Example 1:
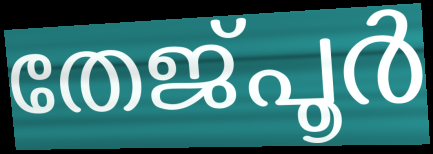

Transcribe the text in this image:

തേജ്പൂർ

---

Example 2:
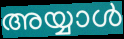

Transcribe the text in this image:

അയ്യാൾ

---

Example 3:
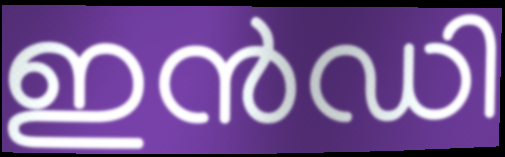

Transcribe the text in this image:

ഇൻഡി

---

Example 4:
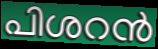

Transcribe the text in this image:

പിശറൻ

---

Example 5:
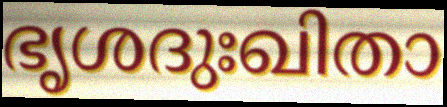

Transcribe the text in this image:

ഭൃശദുഃഖിതാ